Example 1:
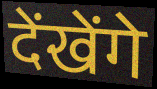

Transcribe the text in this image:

देंखेंगे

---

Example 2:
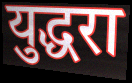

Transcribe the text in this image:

युद्धरा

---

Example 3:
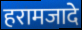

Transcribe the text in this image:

हरामजादे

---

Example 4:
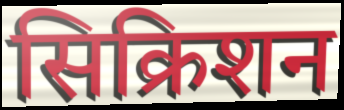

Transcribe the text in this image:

सिक्रिशन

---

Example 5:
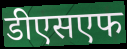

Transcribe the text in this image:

डीएसएफ